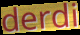
derdi